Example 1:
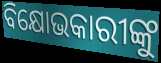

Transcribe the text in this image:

ବିକ୍ଷୋଭକାରୀଙ୍କୁ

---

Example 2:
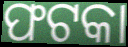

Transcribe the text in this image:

ଫଟକା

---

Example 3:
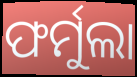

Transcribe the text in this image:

ଫର୍ମୁଲା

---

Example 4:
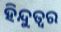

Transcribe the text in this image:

ହିନ୍ଦୁତ୍ବର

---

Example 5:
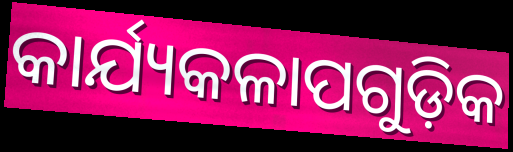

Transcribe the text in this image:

କାର୍ଯ୍ୟକଳାପଗୁଡ଼ିକ